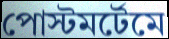
পোস্টমর্টেমে